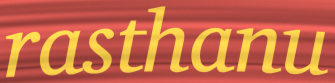
rasthanu